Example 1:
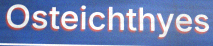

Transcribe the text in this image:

Osteichthyes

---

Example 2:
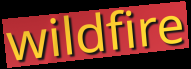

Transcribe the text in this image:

wildfire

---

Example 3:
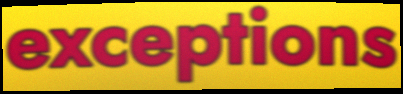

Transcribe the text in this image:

exceptions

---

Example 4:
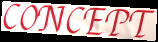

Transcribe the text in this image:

CONCEPT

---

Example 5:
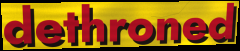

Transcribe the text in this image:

dethroned